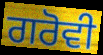
ਗਰੋਵੀ